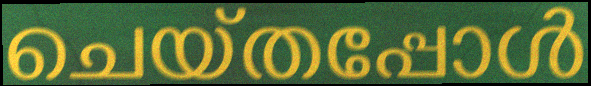
ചെയ്‌തപ്പോൾ